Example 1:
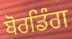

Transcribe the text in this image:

ਬੋਰਡਿੰਗ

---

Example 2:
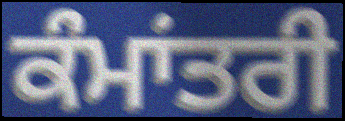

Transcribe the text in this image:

ਕੰਮਾਂਤਰੀ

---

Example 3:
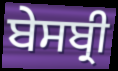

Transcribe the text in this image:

ਬੇਸਬ੍ਰੀ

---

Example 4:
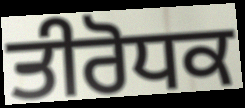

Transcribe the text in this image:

ਤੀਰੋਧਕ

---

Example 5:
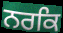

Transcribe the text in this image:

ਨਰਕਿ